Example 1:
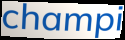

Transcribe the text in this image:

champi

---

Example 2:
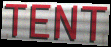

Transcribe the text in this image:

TENT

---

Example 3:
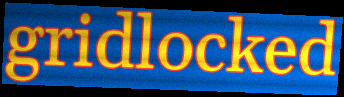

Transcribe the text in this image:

gridlocked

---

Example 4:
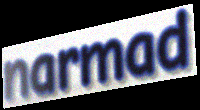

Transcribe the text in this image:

narmad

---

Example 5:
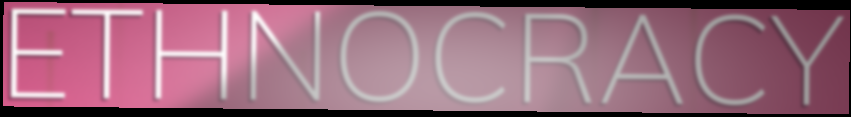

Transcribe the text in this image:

ETHNOCRACY